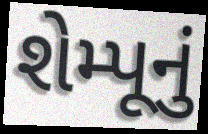
શેમ્પૂનું